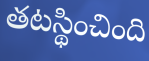
తటస్థించింది